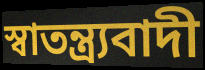
স্বাতন্ত্র্যবাদী